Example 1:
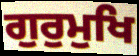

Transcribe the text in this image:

ਗੁਰੁਮੁਖਿ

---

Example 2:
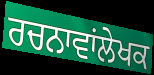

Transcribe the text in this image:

ਰਚਨਾਵਾਂਲੇਖਕ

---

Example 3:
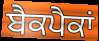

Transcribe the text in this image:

ਬੈਕਪੈਕਾਂ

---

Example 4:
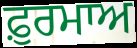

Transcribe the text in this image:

ਫ਼ੁਰਮਾਅ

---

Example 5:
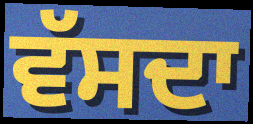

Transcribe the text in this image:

ਵੱਸਦਾ